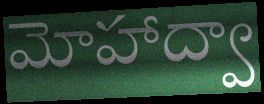
మోహాద్వా